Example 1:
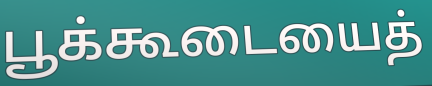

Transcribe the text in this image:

பூக்கூடையைத்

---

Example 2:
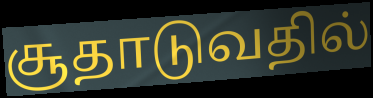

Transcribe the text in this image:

சூதாடுவதில்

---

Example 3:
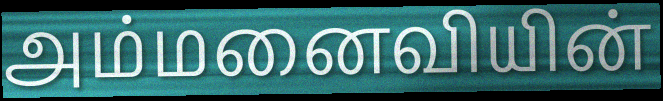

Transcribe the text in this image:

அம்மனைவியின்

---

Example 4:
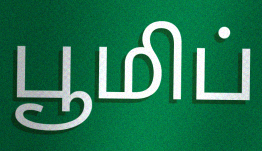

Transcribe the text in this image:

பூமிப்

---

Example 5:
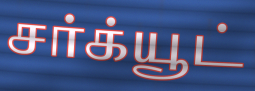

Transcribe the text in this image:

சர்க்யூட்